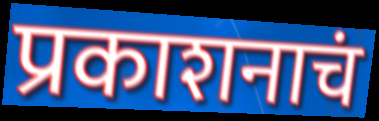
प्रकाशनाचं